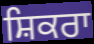
ਸ਼ਿਕਰਾ